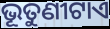
ଭୂତୁଣୀଟାଏ